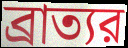
ব্রাত্যর